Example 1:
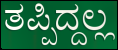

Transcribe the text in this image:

ತಪ್ಪಿದ್ದಲ್ಲ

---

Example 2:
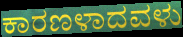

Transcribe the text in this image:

ಕಾರಣಳಾದವಳು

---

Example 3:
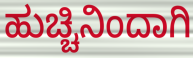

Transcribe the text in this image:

ಹುಚ್ಚಿನಿಂದಾಗಿ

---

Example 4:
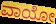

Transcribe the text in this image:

ವಾಯೋ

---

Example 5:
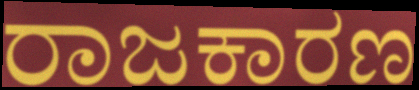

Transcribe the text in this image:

ರಾಜಕಾರಣ